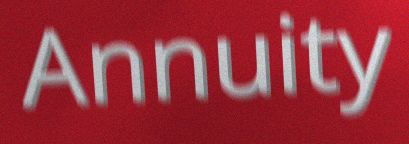
Annuity